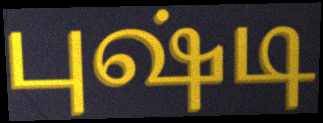
புஷ்டி